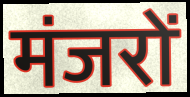
मंजरों